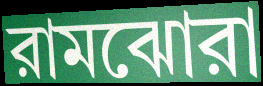
রামঝোরা